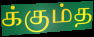
க்கும்த